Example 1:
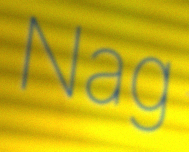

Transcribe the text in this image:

Nag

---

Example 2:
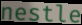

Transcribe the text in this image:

nestle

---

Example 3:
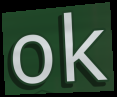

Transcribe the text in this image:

ok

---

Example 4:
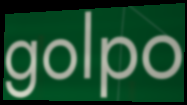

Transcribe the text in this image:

golpo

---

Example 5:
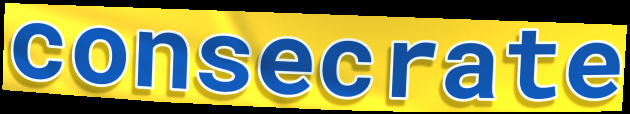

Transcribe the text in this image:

consecrate